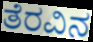
ತೆರವಿನ